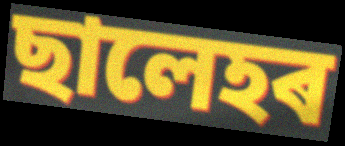
ছালেহৰ